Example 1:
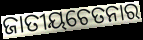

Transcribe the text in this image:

ଜାତୀୟଚେତନାର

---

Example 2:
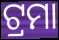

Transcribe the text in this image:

ଟ୍ରମା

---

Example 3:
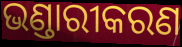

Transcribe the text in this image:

ଭଣ୍ଡାରୀକରଣ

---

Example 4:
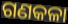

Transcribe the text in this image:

ଗଣକଳା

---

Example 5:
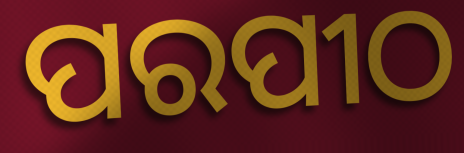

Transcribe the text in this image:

ପରପୀଠ